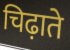
चिढ़ाते